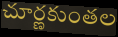
చూర్ణకుంతల